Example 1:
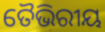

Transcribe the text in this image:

ତୈଭିରୀୟ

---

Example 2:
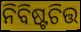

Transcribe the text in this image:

ନିବିଷ୍ଟଚିତ୍ତ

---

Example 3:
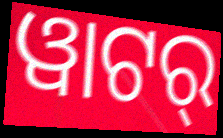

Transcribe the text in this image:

ୱାଟର୍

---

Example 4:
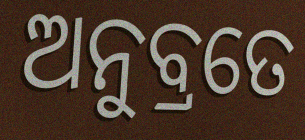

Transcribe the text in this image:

ଅନୁବ୍ରତେ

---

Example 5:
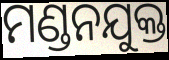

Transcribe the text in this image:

ମଣ୍ଡନଯୁକ୍ତ